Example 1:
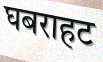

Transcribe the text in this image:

घबराहट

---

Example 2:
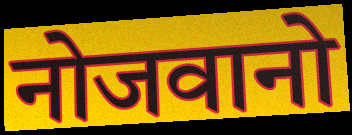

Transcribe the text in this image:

नोजवानो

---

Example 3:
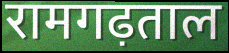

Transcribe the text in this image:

रामगढ़ताल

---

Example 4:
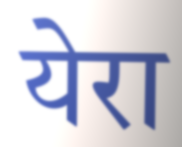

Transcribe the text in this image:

येरा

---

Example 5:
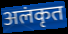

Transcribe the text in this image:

अलंकृत